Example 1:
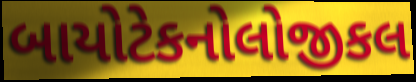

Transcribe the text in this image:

બાયોટેકનોલોજીકલ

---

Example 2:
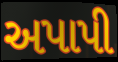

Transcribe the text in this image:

અપાપી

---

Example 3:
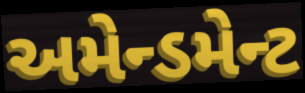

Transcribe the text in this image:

અમેન્ડમેન્ટ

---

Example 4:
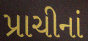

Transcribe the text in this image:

પ્રાચીનાં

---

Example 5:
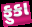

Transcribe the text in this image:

ફુકા